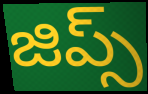
జిప్స్